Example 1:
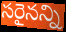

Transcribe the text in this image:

సరైనన్ని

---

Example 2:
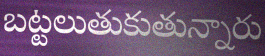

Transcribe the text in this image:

బట్టలుతుకుతున్నారు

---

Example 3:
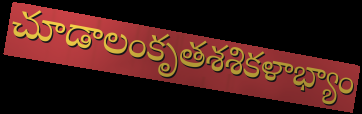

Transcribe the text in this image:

చూడాలంకృతశశికళాభ్యాం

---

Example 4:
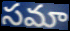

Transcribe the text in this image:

సమా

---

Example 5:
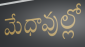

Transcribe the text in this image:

మేధావుల్లో